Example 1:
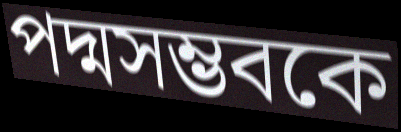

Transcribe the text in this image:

পদ্মসম্ভবকে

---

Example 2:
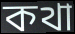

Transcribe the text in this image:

কথা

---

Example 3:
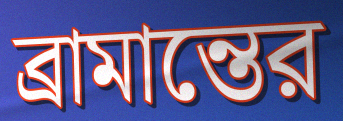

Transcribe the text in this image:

ব্রামান্তের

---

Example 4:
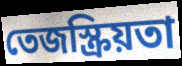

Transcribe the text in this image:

তেজস্ক্রিয়তা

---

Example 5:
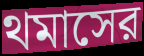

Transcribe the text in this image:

থমাসের